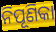
ନିପୂଣିକା